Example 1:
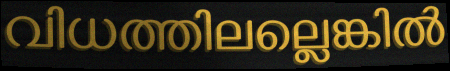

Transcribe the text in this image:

വിധത്തിലല്ലെങ്കിൽ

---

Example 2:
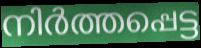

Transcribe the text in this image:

നിർത്തപ്പെട്ട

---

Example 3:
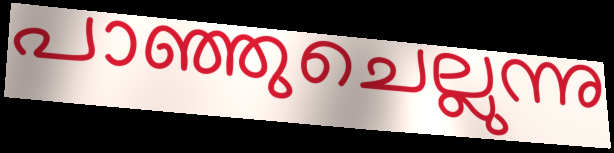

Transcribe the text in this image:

പാഞ്ഞുചെല്ലുന്നു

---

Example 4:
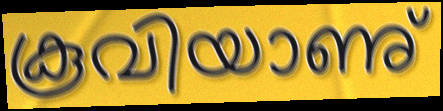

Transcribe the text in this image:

കൂവിയാണു്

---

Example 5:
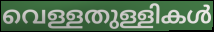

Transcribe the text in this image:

വെള്ളതുള്ളികൾ